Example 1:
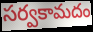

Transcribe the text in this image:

సర్వకామదం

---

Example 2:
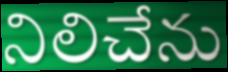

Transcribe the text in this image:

నిలిచేను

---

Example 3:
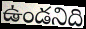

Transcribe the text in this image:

ఉండనిది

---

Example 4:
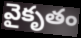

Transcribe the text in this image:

వైకృతం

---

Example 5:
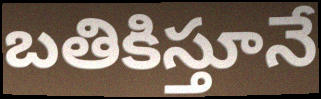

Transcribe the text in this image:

బతికిస్తూనే